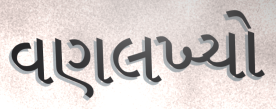
વણલખ્યો